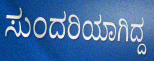
ಸುಂದರಿಯಾಗಿದ್ದ